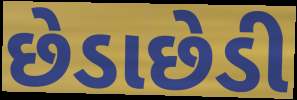
છેડાછેડી